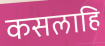
कसलाहि